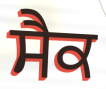
ਸੈਕ